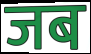
जब